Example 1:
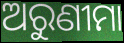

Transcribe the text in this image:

ଅରୁଣୀମା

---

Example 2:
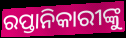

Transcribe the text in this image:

ରପ୍ତାନିକାରୀଙ୍କୁ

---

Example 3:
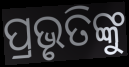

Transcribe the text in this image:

ପ୍ରଭୃତିଙ୍କୁ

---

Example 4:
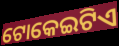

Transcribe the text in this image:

ଟୋକେଇଟିଏ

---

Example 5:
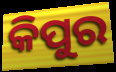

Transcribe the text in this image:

କିପୁର